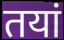
तयां